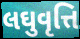
લઘુવૃત્તિ